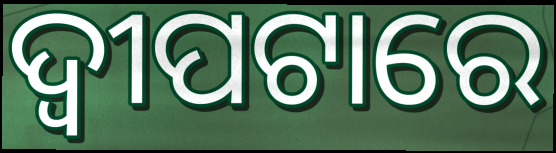
ଦ୍ୱୀପଟାରେ